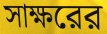
সাক্ষরের